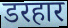
डरहार